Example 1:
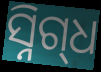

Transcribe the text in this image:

ସ୍ନିଗ୍‍ଧ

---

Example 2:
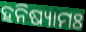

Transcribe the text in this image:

ହନିଷ୍ୟାମଃ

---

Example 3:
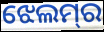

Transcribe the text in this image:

ଝେଲମ୍‌ର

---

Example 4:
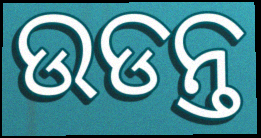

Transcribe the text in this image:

ଉଡନ୍ତ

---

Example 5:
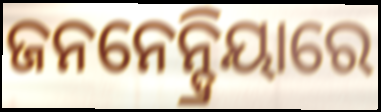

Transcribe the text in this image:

ଜନନେନ୍ଦ୍ରିୟାରେ